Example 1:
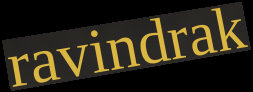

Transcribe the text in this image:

ravindrak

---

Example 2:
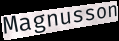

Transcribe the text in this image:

Magnusson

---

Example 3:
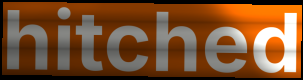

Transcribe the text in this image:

hitched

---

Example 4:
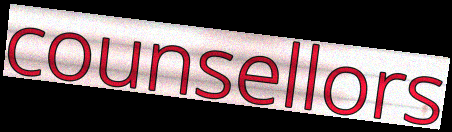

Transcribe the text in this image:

counsellors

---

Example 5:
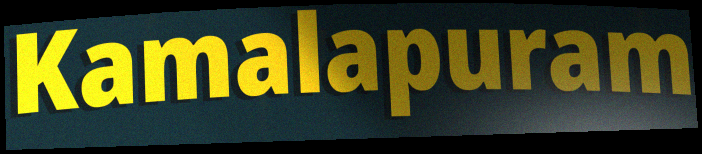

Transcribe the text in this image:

Kamalapuram